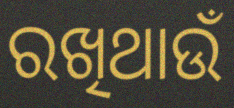
ରଖିଥାଉଁ